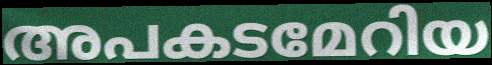
അപകടമേറിയ